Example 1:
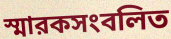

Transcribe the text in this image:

স্মারকসংবলিত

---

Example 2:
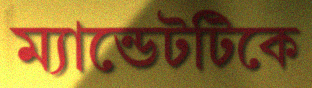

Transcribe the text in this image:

ম্যান্ডেটটিকে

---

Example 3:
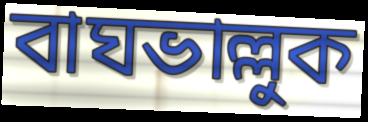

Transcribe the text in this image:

বাঘভাল্লুক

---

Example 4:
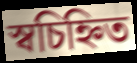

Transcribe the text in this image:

স্বচিহ্নিত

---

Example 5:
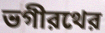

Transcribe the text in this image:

ভগীরথের